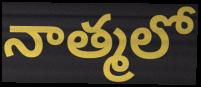
నాత్మలో